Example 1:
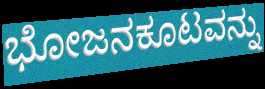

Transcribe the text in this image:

ಭೋಜನಕೂಟವನ್ನು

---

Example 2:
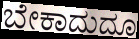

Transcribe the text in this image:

ಬೇಕಾದುದೂ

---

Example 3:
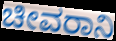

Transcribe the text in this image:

ಚೀವರಾನಿ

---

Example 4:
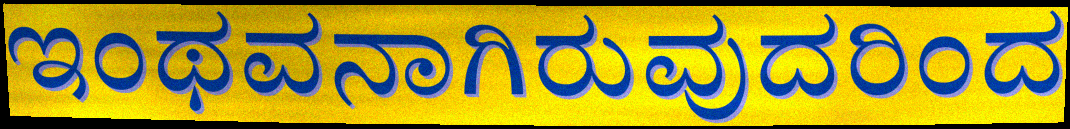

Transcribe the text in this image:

ಇಂಥವನಾಗಿರುವುದರಿಂದ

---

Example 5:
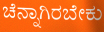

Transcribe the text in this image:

ಚೆನ್ನಾಗಿರಬೇಕು